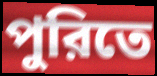
পুরিতে